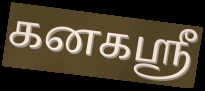
கனகஸ்ரீ